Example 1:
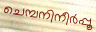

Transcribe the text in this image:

ചെമ്പനിനീർപ്പൂ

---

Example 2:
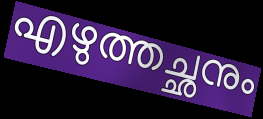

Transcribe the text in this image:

എഴുത്തച്ഛനും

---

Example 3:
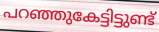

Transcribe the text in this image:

പറഞ്ഞുകേട്ടിട്ടുണ്ട്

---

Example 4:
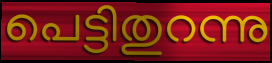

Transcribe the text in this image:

പെട്ടിതുറന്നു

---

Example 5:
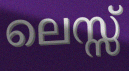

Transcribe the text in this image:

ലെസ്സ്